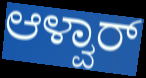
ಆಳ್ವಾರ್